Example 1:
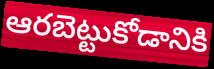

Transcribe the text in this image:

ఆరబెట్టుకోడానికి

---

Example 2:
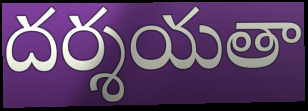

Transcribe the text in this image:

దర్శయతా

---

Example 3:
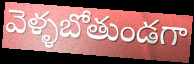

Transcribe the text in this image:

వెళ్ళబోతుండగా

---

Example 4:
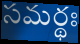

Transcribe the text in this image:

సమర్థః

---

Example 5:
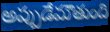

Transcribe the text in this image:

అప్పుడేమౌతుంది